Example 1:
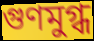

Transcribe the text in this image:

গুণমুগ্ধ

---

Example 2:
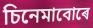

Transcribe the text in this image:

চিনেমাবোৰে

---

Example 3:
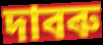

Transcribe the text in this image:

দাবৰু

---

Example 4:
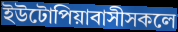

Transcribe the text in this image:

ইউটোপিয়াবাসীসকলে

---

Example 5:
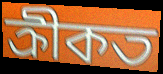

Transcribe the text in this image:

ক্ৰীকত